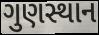
ગુણસ્થાન